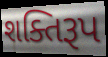
શક્તિરૂપ